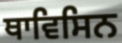
ਥਾਵਿਸਿਨ